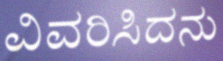
ವಿವರಿಸಿದನು